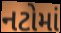
નટોમાં